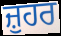
ਜ਼ੁਹਰ